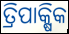
ତ୍ରିପାକ୍ଷିକ